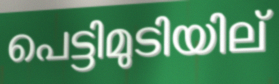
പെട്ടിമുടിയില്